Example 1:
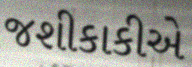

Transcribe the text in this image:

જશીકાકીએ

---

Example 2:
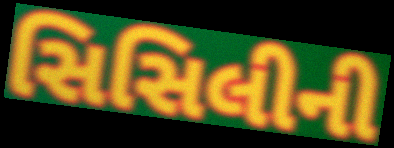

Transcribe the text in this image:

સિસિલીની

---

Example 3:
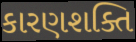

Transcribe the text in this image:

કારણશક્તિ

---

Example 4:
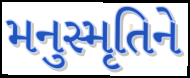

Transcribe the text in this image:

મનુસ્મૃતિને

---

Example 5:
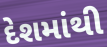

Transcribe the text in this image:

દેશમાંથી